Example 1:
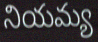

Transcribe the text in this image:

నియమ్య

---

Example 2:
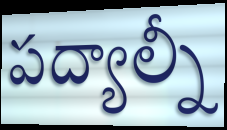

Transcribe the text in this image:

పద్యాల్నీ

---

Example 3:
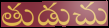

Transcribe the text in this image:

తుడుచు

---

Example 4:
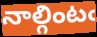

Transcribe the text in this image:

నాల్గింటఁ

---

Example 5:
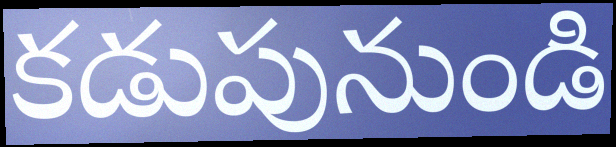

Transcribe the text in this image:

కడుపునుండి